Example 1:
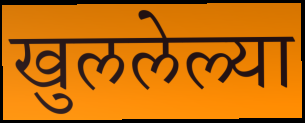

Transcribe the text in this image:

खुललेल्या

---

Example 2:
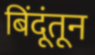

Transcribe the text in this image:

बिंदूंतून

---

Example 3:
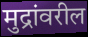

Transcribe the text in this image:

मुद्रांवरील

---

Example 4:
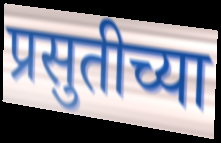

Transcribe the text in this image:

प्रसुतीच्या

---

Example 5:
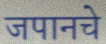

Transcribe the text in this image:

जपानचे